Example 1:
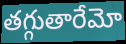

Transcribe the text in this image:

తగ్గుతారేమో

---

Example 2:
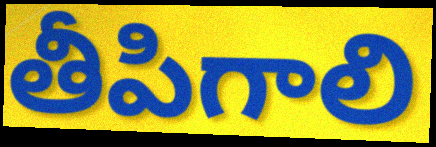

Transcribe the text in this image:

తీపిగాలి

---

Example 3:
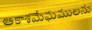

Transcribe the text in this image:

ఆకాశమేఘములను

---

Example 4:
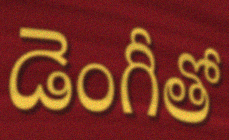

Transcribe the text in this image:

డెంగీతో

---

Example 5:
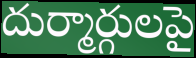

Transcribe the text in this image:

దుర్మార్గులపై